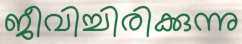
ജീവിച്ചിരിക്കുന്നു